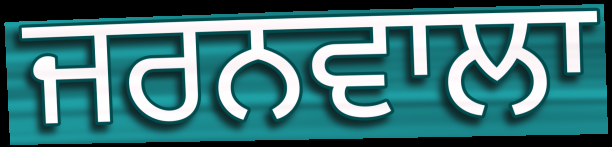
ਜਰਨਵਾਲਾ